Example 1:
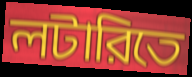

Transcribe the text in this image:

লটারিতে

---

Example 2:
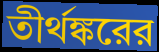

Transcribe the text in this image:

তীর্থঙ্করের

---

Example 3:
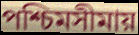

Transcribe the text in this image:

পশ্চিমসীমায়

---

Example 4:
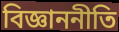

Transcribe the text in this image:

বিজ্ঞাননীতি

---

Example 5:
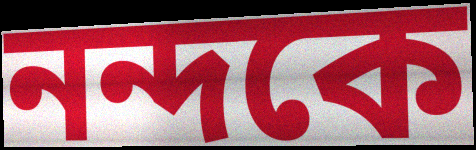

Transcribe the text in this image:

নন্দকে